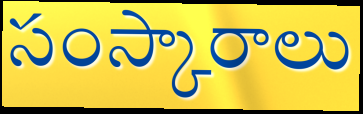
సంస్కారాలు